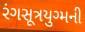
રંગસૂત્રયુગ્મની